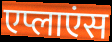
एप्लाएंस